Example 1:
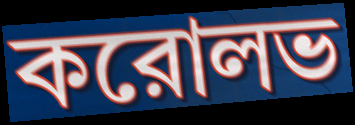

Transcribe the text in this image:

করোলভ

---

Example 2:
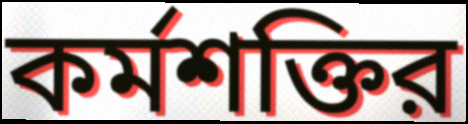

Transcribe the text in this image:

কর্মশক্তির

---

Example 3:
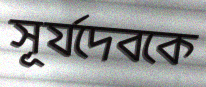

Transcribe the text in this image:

সূর্যদেবকে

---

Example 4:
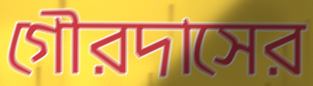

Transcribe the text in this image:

গৌরদাসের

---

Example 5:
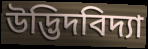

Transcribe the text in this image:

উদ্ভিদবিদ্যা